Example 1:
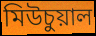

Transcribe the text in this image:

মিউচুয়াল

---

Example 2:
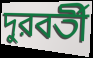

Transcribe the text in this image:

দুরবর্তী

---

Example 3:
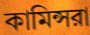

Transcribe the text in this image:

কামিন্সরা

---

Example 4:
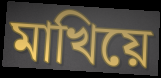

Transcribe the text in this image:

মাখিয়ে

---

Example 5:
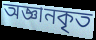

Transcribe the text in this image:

অজ্ঞানকৃত